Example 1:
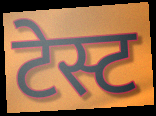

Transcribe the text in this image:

टेस्ट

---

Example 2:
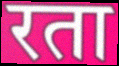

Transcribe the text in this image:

रता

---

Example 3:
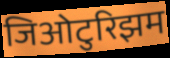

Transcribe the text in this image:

जिओटुरिझम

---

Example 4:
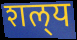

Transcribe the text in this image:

शल्य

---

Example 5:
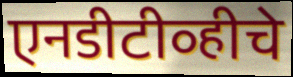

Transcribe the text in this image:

एनडीटीव्हीचे